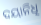
ଦୟାନିଧି